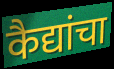
कैद्यांचा